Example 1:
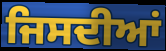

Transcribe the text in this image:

ਜਿਸਦੀਆਂ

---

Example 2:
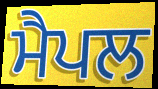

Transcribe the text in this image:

ਮੈਪਲ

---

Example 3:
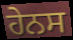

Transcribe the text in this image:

ਹੇਨਸ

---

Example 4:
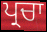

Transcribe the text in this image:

ਪ੍ਰਚਾ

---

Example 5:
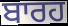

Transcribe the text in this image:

ਬਾਰਹ